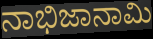
ನಾಭಿಜಾನಾಮಿ